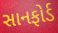
સાનફોર્ડ